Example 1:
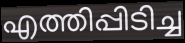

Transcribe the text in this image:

എത്തിപ്പിടിച്ച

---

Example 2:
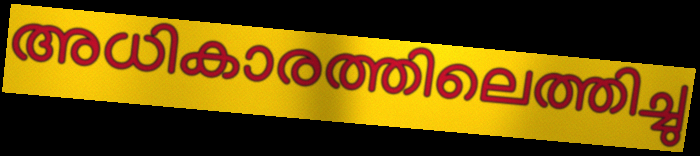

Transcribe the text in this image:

അധികാരത്തിലെത്തിച്ചു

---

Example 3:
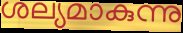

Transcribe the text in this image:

ശല്യമാകുന്നു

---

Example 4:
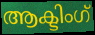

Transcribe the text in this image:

ആക്ടിംഗ്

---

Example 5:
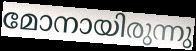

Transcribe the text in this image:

മോനായിരുന്നു